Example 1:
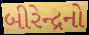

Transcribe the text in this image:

બીરેન્દ્રનો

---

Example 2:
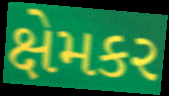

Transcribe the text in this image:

ક્ષેમકર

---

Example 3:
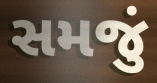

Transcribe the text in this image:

સમજું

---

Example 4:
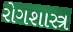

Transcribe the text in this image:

રોગશાસ્ત્ર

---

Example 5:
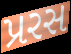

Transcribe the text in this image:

પ્રરસ